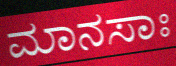
ಮಾನಸಾಃ